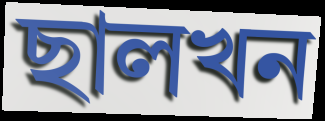
ছালখন